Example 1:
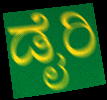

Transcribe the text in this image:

ಡೈರಿ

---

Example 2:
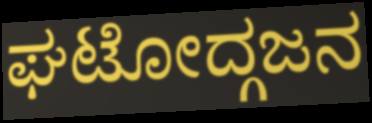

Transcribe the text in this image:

ಘಟೋದ್ಗಜನ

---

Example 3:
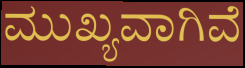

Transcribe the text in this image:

ಮುಖ್ಯವಾಗಿವೆ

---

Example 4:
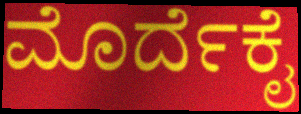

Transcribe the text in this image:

ಮೊರ್ದೆಕೈ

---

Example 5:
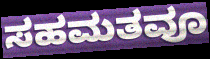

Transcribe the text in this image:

ಸಹಮತವೂ